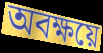
অবক্ষয়ে